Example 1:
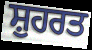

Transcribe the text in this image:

ਸ਼ੁਹਰਤ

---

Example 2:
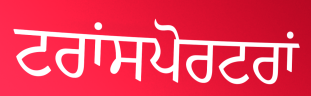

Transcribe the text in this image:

ਟਰਾਂਸਪੋਰਟਰਾਂ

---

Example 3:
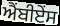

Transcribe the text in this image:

ਐਂਬੀਏਂਸ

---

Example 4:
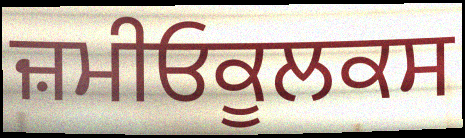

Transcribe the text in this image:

ਜ਼ਮੀਓਕੂਲਕਸ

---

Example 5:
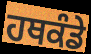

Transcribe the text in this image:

ਹਥਕੰਡੇ